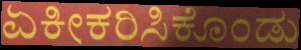
ಏಕೀಕರಿಸಿಕೊಂಡು